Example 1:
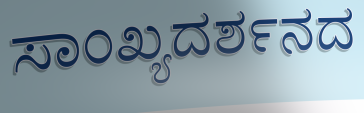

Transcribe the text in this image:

ಸಾಂಖ್ಯದರ್ಶನದ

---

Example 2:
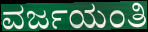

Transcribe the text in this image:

ವರ್ಜಯಂತಿ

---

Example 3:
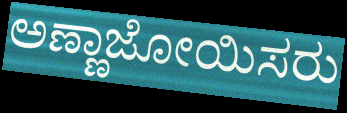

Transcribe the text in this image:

ಅಣ್ಣಾಜೋಯಿಸರು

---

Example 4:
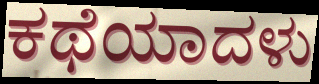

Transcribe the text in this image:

ಕಥೆಯಾದಳು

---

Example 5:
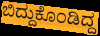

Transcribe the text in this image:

ಬಿದ್ದುಕೊಂಡಿದ್ದ